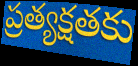
ప్రత్యక్షతకు